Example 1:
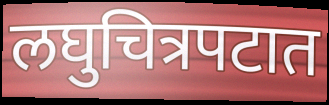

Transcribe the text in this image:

लघुचित्रपटात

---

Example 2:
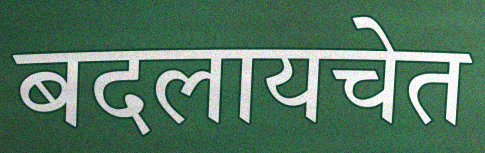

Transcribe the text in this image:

बदलायचेत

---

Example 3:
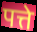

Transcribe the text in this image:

पत्ते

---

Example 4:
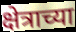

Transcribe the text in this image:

क्षेत्राच्या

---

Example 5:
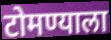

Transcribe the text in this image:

टोमण्याला